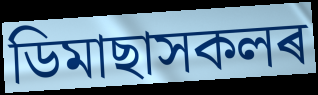
ডিমাছাসকলৰ